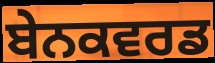
ਬੇਨਕਵਰਡ